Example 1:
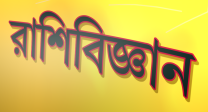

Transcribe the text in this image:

রাশিবিজ্ঞান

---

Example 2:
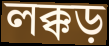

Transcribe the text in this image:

লক্কড়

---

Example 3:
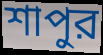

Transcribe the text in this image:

শাপুর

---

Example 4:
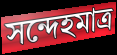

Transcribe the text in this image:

সন্দেহমাত্র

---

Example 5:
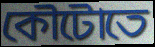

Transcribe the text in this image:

কৌটোতে